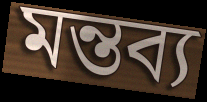
মন্তব্য